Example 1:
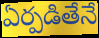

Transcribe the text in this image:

ఏర్పడితేనే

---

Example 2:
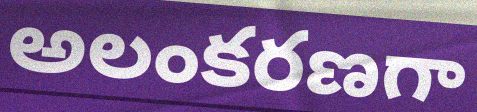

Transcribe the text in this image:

అలంకరణగా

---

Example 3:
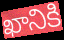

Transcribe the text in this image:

ఖానికి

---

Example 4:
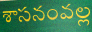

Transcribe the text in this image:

శాసనంవల్ల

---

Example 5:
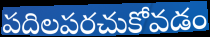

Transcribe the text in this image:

పదిలపరచుకోవడం